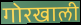
गोरखाली